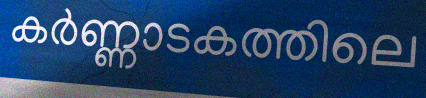
കർണ്ണാടകത്തിലെ